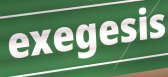
exegesis